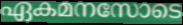
ഏകമനസോടെ